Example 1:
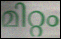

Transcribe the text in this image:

മിറ്റം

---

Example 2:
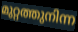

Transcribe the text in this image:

മുറ്റത്തുനിന്ന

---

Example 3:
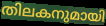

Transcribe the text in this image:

തിലകനുമായി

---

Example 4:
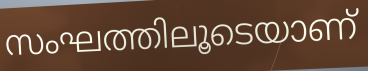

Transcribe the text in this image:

സംഘത്തിലൂടെയാണ്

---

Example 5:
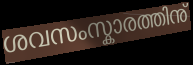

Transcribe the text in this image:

ശവസംസ്കാരത്തിനു്